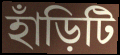
হাঁড়িটি